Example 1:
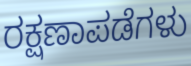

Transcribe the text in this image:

ರಕ್ಷಣಾಪಡೆಗಳು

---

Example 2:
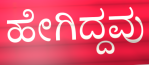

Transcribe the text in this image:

ಹೇಗಿದ್ದವು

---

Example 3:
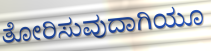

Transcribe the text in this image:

ತೋರಿಸುವುದಾಗಿಯೂ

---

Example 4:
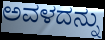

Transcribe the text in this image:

ಅವಳದನ್ನು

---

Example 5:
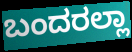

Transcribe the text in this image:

ಬಂದರಲ್ಲಾ